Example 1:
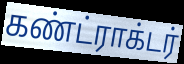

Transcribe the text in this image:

கண்ட்ராக்டர்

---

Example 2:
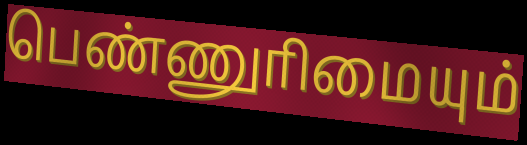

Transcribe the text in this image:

பெண்ணுரிமையும்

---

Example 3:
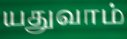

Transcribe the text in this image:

யதுவாம்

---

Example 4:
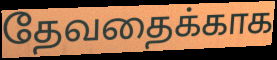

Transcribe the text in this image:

தேவதைக்காக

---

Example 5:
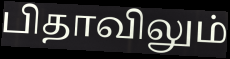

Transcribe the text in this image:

பிதாவிலும்